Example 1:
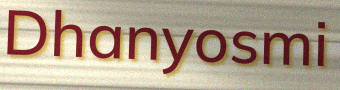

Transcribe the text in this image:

Dhanyosmi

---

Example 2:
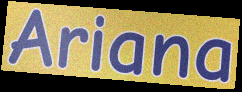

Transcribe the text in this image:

Ariana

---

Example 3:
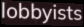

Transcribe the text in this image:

lobbyists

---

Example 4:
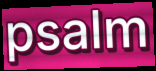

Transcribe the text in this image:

psalm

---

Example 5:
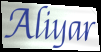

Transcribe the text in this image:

Aliyar